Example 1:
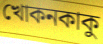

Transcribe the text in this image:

খোকনকাকু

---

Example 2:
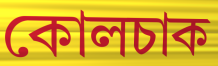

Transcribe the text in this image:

কোলচাক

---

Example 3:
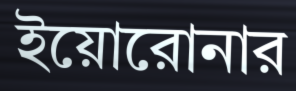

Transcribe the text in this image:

ইয়োরোনার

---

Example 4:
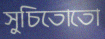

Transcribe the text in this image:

সুচিতোতো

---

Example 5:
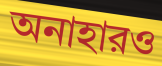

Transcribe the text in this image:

অনাহারও